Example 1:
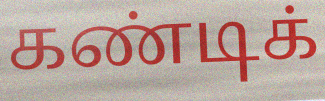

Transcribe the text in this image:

கண்டிக்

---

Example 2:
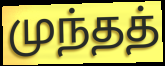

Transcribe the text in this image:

முந்தத்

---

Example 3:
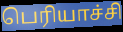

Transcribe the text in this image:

பெரியாச்சி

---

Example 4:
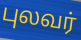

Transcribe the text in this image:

புலவர்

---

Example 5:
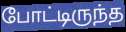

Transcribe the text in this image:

போட்டிருந்த